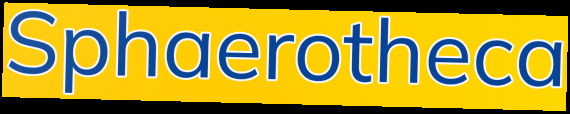
Sphaerotheca